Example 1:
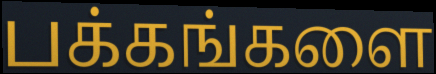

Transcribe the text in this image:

பக்கங்களை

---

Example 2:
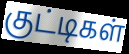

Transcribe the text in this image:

குட்டிகள்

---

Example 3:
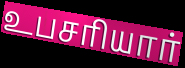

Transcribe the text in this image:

உபசரியார்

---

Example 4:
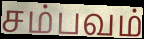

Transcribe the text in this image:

சம்பவம்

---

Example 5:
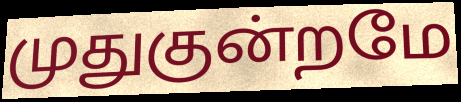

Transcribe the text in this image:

முதுகுன்றமே